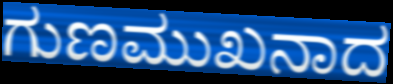
ಗುಣಮುಖನಾದ